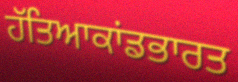
ਹੱਤਿਆਕਾਂਡਭਾਰਤ